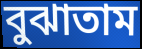
বুঝাতাম